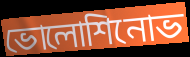
ভোলোশিনোভ